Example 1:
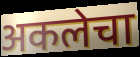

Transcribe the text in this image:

अकलेचा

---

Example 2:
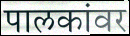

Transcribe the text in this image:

पालकांवर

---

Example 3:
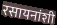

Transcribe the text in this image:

रसायनांशी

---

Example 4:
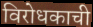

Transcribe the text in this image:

विरोधकाची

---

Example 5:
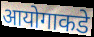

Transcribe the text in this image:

आयोगाकडे